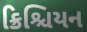
ક્રિશ્ચિયન